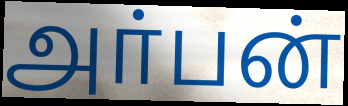
அர்பன்